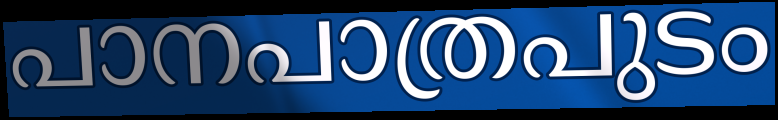
പാനപാത്രപുടം